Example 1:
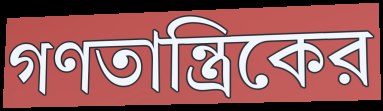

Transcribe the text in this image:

গণতান্ত্রিকের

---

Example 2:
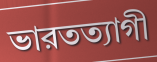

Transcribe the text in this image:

ভারতত্যাগী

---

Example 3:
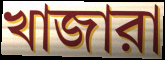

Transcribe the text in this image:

খাজারা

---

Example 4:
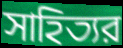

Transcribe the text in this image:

সাহিত্যর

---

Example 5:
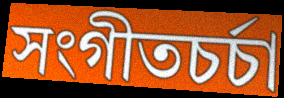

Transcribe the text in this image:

সংগীতচর্চা